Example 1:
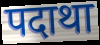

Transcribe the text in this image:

पदाथा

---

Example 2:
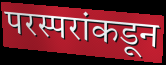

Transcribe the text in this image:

परस्परांकडून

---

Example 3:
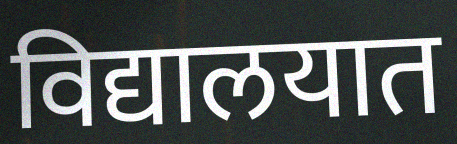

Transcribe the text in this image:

विद्यालयात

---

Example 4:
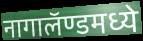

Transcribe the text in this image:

नागालॅण्डमध्ये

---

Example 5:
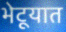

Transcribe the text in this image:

भेटूयात